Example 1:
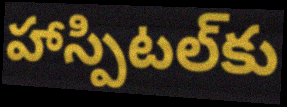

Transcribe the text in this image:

హాస్పిటల్‌కు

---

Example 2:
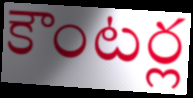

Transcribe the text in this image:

కౌంటర్ల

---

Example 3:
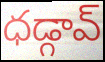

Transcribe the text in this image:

ధడ్గావ్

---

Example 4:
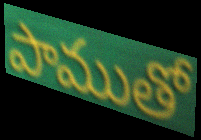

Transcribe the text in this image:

పాముతో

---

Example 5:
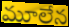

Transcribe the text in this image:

మూలేన